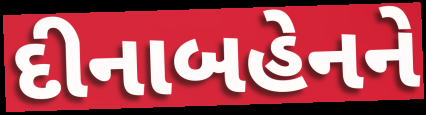
દીનાબહેનને